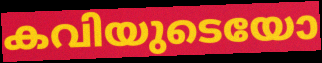
കവിയുടെയോ